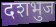
दशभुज